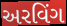
અરવિંગ